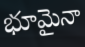
భూమైనా